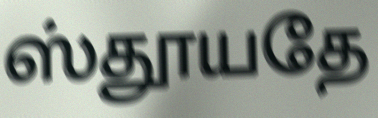
ஸ்தூயதே